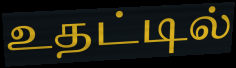
உதட்டில்